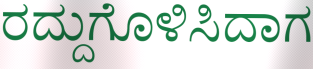
ರದ್ದುಗೊಳಿಸಿದಾಗ